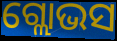
ଗ୍ଲୋଭସ